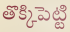
తొక్కిపెట్టి